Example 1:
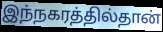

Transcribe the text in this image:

இந்நகரத்தில்தான்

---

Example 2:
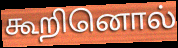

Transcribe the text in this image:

கூறினொல்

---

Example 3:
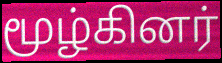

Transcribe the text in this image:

மூழ்கினர்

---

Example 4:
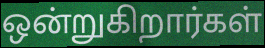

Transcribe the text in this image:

ஒன்றுகிறார்கள்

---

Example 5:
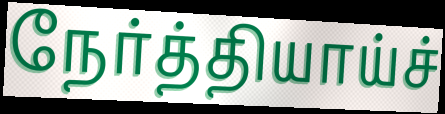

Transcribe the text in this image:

நேர்த்தியாய்ச்